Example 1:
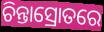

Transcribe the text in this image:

ଚିନ୍ତାସ୍ରୋତରେ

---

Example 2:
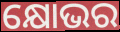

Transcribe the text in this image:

କ୍ଷୋଭର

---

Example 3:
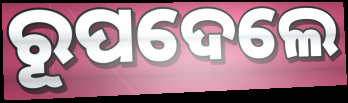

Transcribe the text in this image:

ରୂପଦେଲେ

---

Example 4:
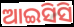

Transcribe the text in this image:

ଆଇସିସି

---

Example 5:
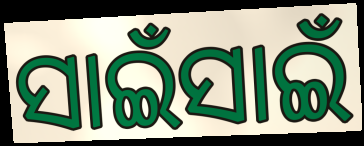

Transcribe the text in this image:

ସାଇଁସାଇଁ